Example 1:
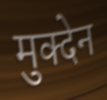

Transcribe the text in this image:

मुक्देन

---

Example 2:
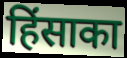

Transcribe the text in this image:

हिंसाका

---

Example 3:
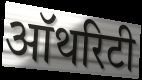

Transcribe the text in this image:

ऑथरिटी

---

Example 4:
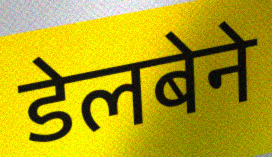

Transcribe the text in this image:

डेलबेने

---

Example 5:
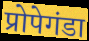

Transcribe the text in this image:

प्रोपेगंडा